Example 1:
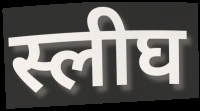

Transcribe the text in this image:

स्लीघ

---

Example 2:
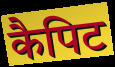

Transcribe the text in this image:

कैपिट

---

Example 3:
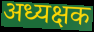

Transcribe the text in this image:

अध्यक्षक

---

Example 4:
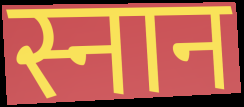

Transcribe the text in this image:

स्‍नान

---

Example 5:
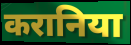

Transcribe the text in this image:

करानिया